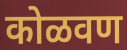
कोळवण